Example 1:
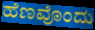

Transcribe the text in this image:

ಹೆಣವೊಂದು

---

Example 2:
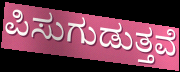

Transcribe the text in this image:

ಪಿಸುಗುಡುತ್ತವೆ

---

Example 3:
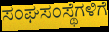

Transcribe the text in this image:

ಸಂಘಸಂಸ್ಥೆಗಳಿಗೆ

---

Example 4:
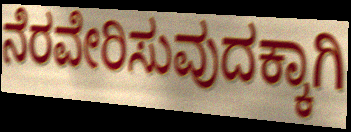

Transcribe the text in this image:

ನೆರವೇರಿಸುವುದಕ್ಕಾಗಿ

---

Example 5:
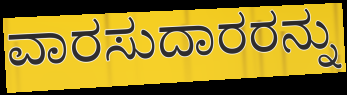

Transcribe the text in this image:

ವಾರಸುದಾರರನ್ನು